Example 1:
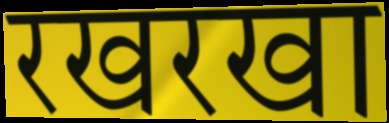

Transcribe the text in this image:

रखरखा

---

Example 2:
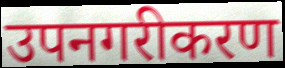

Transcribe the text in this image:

उपनगरीकरण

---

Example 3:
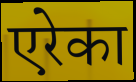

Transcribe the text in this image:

एरेका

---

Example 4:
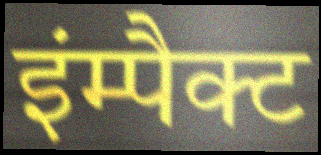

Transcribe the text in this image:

इंम्पैक्ट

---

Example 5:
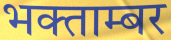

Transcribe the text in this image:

भक्ताम्बर